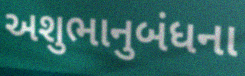
અશુભાનુબંધના